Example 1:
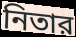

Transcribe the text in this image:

নিতার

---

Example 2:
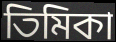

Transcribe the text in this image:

তিমিকা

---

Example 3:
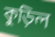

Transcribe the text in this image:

কুড়িল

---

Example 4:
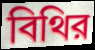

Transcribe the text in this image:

বিথির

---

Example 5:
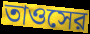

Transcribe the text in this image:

তাওসের